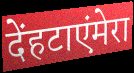
देंहटाएंमेरा